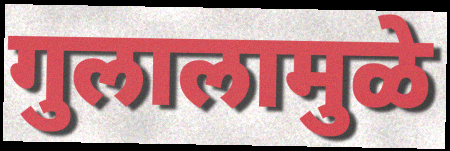
गुलालामुळे